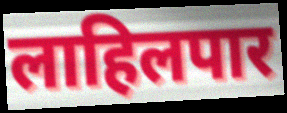
लाहिलपार